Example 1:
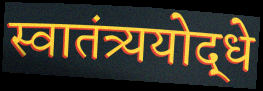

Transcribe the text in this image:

स्वातंत्र्ययोद्धे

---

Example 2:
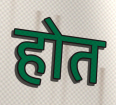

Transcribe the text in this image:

होत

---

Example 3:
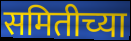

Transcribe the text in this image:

समितीच्‍या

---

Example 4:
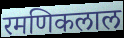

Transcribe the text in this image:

रमणिकलाल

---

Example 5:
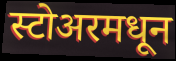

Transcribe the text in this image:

स्टोअरमधून